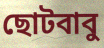
ছোটবাবু